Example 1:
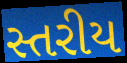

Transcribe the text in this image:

સ્તરીય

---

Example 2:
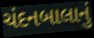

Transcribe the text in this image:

ચંદનબાલાનું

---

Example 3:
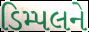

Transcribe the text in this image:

ડિમ્પલને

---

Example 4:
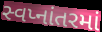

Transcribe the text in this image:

સ્વપ્નાંતરમાં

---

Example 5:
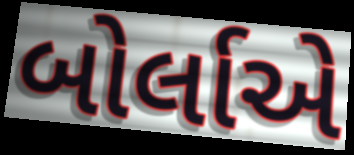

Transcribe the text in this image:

બોર્લાએ